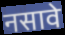
नसावे